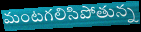
మంటగలిసిపోతున్న